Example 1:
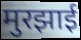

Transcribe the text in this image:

मुरझाई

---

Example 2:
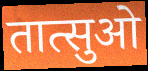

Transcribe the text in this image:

तात्सुओ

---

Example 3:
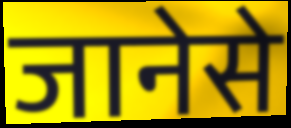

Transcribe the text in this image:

जानेसे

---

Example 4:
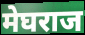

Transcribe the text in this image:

मेघराज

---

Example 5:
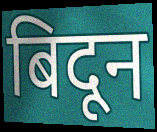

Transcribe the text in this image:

बिदून